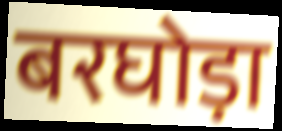
बरघोड़ा